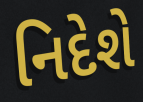
નિદેશે